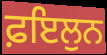
ਫ਼ਇਲੁਨ